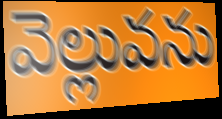
వెల్లువను